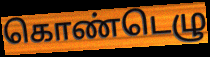
கொண்டெழு